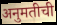
अनुमतीची